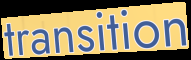
transition